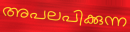
അപലപിക്കുന്ന